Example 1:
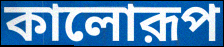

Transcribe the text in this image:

কালোরূপ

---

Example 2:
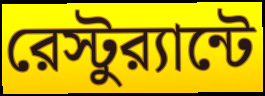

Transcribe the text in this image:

রেস্টুর‍্যান্টে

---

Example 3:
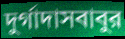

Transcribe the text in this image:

দুর্গাদাসবাবুর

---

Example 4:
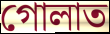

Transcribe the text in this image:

গোলাত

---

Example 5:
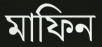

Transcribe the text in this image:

মাফিন